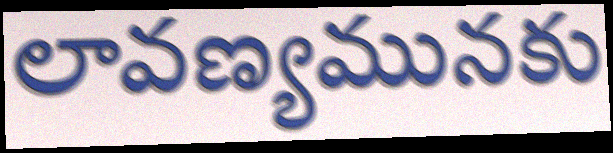
లావణ్యమునకు